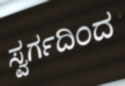
ಸ್ವರ್ಗದಿಂದ